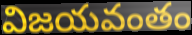
విజయవంతం